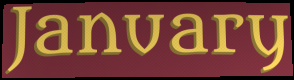
January